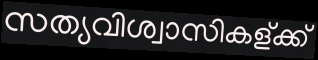
സത്യവിശ്വാസികള്ക്ക്